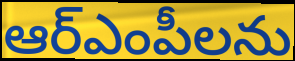
ఆర్ఎంపీలను